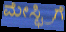
ಮೇಸ್ಟ್ರಿಗೆ